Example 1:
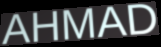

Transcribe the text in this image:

AHMAD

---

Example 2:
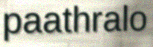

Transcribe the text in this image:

paathralo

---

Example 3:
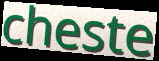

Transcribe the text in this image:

cheste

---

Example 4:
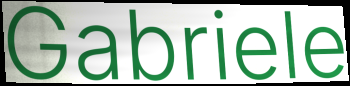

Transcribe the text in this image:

Gabriele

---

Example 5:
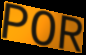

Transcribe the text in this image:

POR